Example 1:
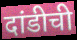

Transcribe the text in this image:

दांडीची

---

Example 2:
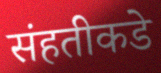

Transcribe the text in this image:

संहतीकडे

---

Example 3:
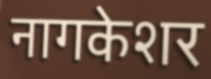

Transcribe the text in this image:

नागकेशर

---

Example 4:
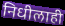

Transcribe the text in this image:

निधीलाही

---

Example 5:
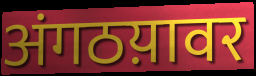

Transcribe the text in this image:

अंगठय़ावर